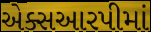
એક્સઆરપીમાં